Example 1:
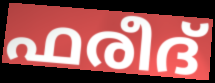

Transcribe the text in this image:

ഫരീദ്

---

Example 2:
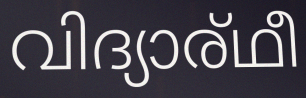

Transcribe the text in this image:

വിദ്യാര്ഥീ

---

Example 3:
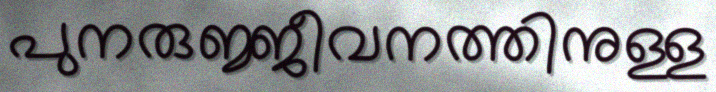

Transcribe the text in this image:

പുനരുജ്ജീവനത്തിനുള്ള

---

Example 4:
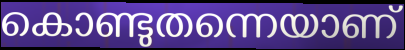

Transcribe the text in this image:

കൊണ്ടുതന്നെയാണ്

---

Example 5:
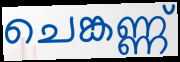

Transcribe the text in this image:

ചെങ്കണ്ണ്